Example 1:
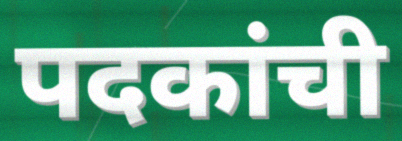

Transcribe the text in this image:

पदकांची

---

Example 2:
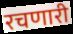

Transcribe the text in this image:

रचणारी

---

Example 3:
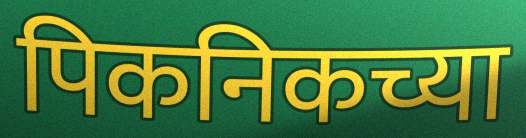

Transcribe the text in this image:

पिकनिकच्या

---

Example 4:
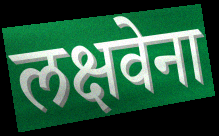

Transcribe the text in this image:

लक्षवेना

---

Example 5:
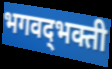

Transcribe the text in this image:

भगवद्‌भक्ती